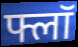
फ्लॉ